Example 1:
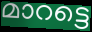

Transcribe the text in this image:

മാറട്ടെ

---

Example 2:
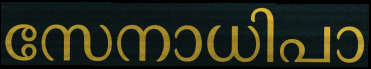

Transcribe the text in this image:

സേനാധിപാ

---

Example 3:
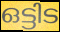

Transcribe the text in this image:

ഒട്ടിട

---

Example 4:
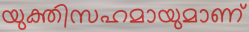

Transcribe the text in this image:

യുക്തിസഹമായുമാണ്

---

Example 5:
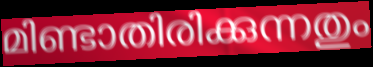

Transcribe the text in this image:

മിണ്ടാതിരിക്കുന്നതും